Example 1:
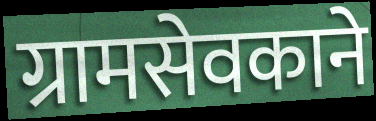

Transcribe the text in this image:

ग्रामसेवकाने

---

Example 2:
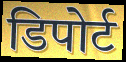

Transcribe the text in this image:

डिपोर्ट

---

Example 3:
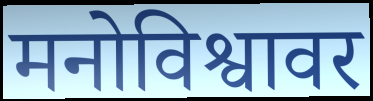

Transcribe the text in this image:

मनोविश्वावर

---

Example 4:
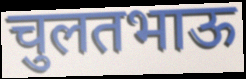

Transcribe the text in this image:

चुलतभाऊ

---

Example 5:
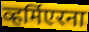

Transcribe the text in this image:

व्हर्मिएरना